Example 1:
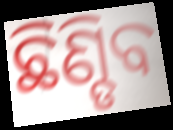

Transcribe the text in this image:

ଛିଣ୍ଡିବ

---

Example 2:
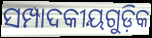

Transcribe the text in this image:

ସମ୍ପାଦକୀୟଗୁଡ଼ିକ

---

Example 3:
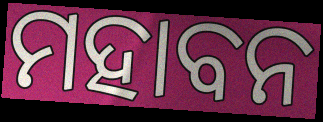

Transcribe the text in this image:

ମହାବନ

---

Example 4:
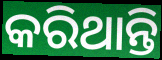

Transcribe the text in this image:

କରିଥାନ୍ତି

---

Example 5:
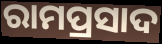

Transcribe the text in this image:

ରାମପ୍ରସାଦ